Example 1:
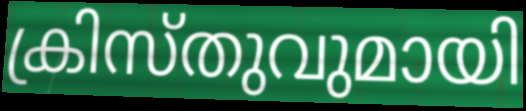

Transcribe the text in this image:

ക്രിസ്തുവുമായി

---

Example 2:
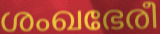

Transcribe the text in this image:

ശംഖഭേരീ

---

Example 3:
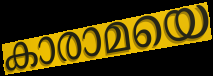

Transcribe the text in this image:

കാരാമയെ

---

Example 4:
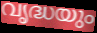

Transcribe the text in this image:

വൃദ്ധയും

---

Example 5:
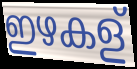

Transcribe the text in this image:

ഇഴകള്